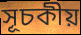
সূচকীয়